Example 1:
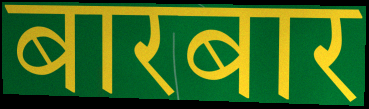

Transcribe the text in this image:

बारबार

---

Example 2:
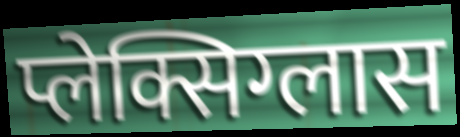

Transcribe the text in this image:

प्लेक्सिग्लास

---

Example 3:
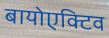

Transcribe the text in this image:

बायोएक्टिव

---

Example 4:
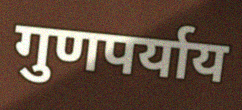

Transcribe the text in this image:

गुणपर्याय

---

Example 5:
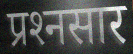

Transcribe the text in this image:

प्रश्‍नसार